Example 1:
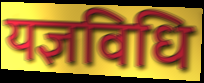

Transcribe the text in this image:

यज्ञविधि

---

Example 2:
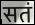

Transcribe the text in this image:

सतं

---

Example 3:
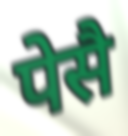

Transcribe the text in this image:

पेसै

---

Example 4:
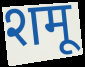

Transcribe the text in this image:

शमू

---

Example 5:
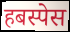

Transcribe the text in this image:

हबस्पेस